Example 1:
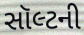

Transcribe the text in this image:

સૉલ્ટની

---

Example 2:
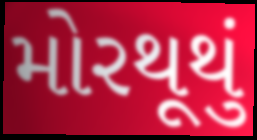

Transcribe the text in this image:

મોરથૂથું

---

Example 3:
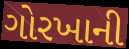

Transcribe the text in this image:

ગોરખાની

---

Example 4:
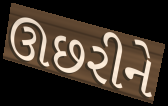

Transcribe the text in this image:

ઊછરીને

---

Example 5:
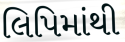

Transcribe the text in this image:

લિપિમાંથી